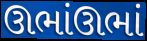
ઊભાંઊભાં